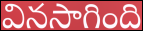
వినసాగింది